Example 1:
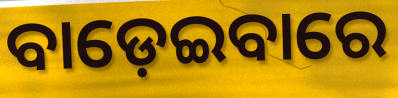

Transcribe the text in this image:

ବାଡ଼େଇବାରେ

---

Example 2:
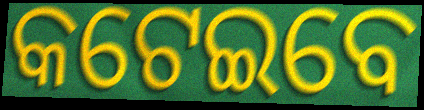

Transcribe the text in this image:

କଟେଇବେ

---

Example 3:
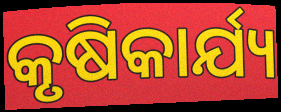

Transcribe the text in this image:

କୃଷିକାର୍ଯ୍ୟ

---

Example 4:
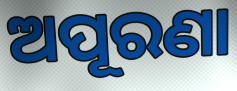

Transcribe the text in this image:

ଅପୂରଣା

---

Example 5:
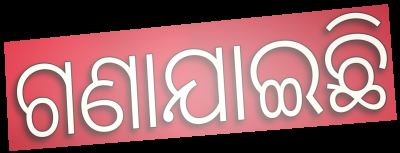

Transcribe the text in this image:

ଗଣାଯାଇଛି